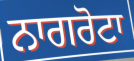
ਨਾਗਰੋਟਾ